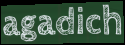
agadich